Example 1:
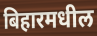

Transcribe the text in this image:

बिहारमधील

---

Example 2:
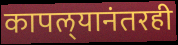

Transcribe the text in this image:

कापल्यानंतरही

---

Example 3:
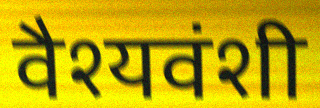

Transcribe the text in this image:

वैश्यवंशी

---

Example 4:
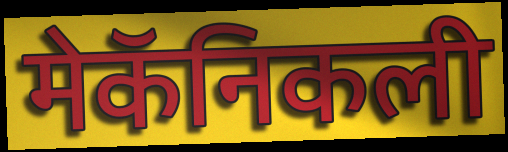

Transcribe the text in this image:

मेकॅनिकली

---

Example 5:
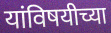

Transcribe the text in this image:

यांविषयीच्या